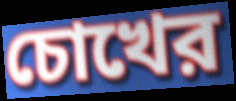
চোখের